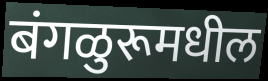
बंगळुरूमधील